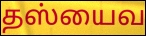
தஸ்யைவ